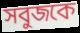
সবুজকে